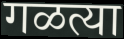
गळत्या